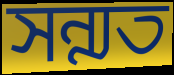
সন্মত